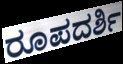
ರೂಪದರ್ಶಿ